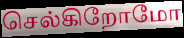
செல்கிறோமோ